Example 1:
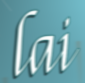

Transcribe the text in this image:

lai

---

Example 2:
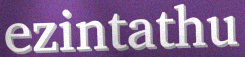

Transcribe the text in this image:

ezintathu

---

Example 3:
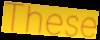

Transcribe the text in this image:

These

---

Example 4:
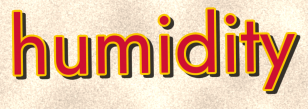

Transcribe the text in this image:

humidity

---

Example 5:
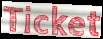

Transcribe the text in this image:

Ticket